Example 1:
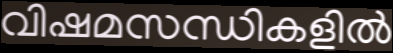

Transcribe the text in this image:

വിഷമസന്ധികളിൽ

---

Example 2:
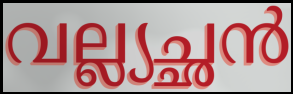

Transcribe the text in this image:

വല്ല്യച്ഛൻ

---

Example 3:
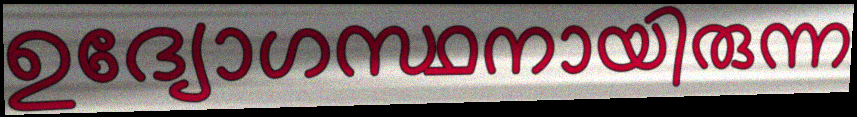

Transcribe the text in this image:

ഉദ്യോഗസ്ഥനായിരുന്ന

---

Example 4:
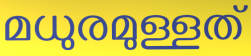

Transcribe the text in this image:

മധുരമുള്ളത്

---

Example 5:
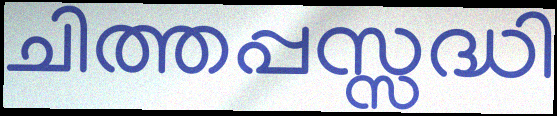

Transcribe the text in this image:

ചിത്തപ്പസ്സദ്ധി